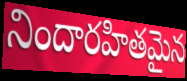
నిందారహితమైన